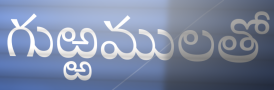
గుఱ్ఱములతో